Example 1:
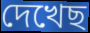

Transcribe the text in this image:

দেখেছ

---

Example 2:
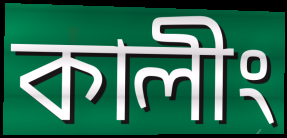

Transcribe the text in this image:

কালীং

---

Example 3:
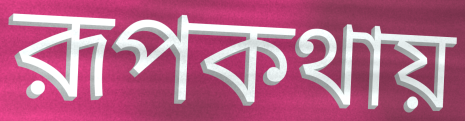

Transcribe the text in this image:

রূপকথায়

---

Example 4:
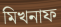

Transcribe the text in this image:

মিখনাফ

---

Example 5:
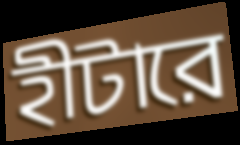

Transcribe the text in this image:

হীটারে